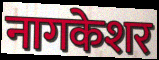
नागकेशर